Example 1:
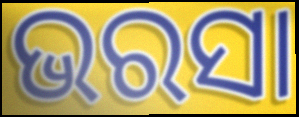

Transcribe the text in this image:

ଭରସା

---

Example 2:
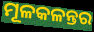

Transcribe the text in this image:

ମୂଳକଳନ୍ତର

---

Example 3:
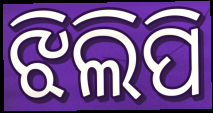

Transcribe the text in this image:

ଝିଲିପି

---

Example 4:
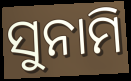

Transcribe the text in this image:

ସୁନାମି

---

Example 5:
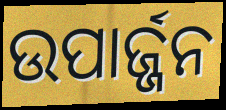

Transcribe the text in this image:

ଉପାର୍ଜ୍ଜନ